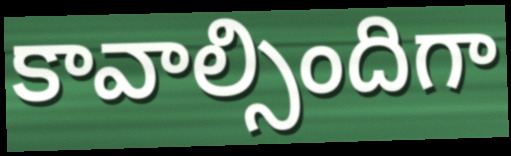
కావాల్సిందిగా